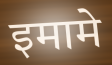
इमामे